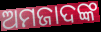
ଅମଜାଦଙ୍କ